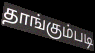
தாங்கும்படி